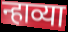
न्हाव्या